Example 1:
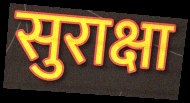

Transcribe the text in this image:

सुराक्षा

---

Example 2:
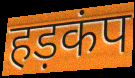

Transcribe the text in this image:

हड़कंप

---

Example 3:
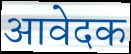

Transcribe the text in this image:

आवेदक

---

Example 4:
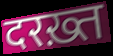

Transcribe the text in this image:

दरख़्त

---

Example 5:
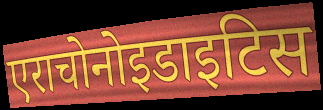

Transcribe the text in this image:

एराचोनोइडाइटिस